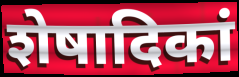
शेषादिकां